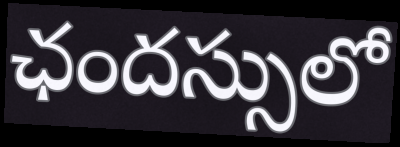
ఛందస్సులో